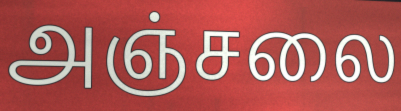
அஞ்சலை